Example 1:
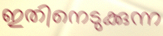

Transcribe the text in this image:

ഇതിനെടുക്കുന്ന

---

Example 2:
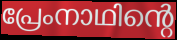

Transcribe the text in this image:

പ്രേംനാഥിന്റെ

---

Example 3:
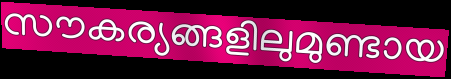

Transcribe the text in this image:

സൗകര്യങ്ങളിലുമുണ്ടായ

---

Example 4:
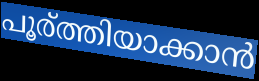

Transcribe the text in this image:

പൂര്ത്തിയാക്കാൻ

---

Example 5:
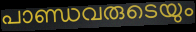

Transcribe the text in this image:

പാണ്ഡവരുടെയും